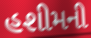
હશીમની